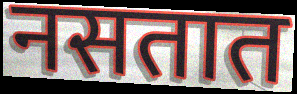
नसतात